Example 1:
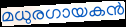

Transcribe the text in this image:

മധുരഗായകൻ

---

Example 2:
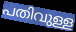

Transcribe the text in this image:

പതിവുള്ള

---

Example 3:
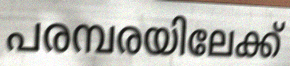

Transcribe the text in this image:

പരമ്പരയിലേക്ക്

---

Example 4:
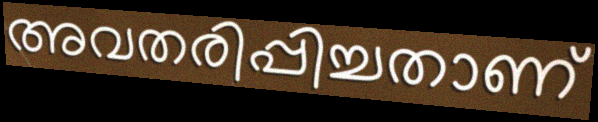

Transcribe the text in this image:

അവതരിപ്പിച്ചതാണ്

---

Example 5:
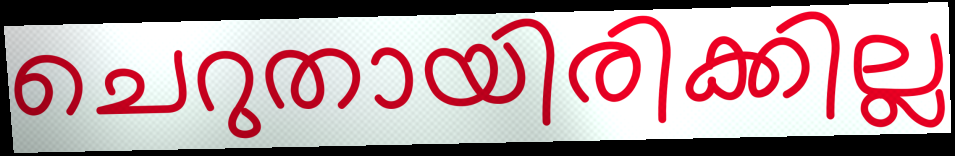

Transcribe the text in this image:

ചെറുതായിരിക്കില്ല